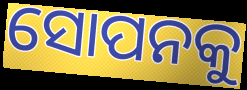
ସୋପନକୁ